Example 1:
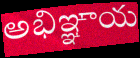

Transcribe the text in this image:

అభిఞ్ఞాయ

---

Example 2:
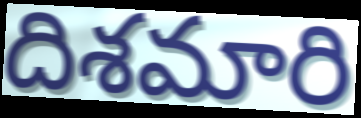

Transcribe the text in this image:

దిశమారి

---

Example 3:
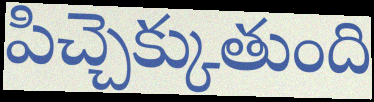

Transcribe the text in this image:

పిచ్చెక్కుతుంది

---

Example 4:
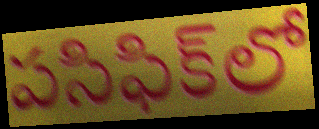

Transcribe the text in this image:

పసిఫిక్‌లో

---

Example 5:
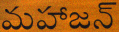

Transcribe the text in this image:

మహాజన్